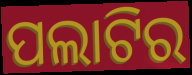
ପଲାଟିର